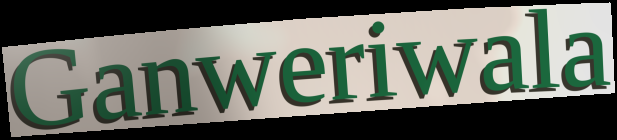
Ganweriwala